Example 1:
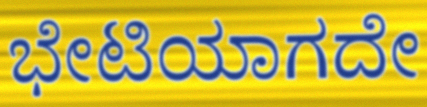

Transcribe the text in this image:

ಭೇಟಿಯಾಗದೇ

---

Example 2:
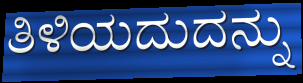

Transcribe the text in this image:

ತಿಳಿಯದುದನ್ನು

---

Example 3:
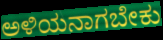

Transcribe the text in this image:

ಅಳಿಯನಾಗಬೇಕು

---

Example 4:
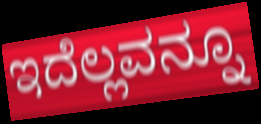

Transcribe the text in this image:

ಇದೆಲ್ಲವನ್ನೂ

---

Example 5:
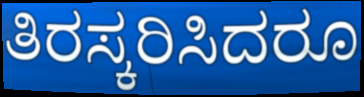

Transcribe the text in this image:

ತಿರಸ್ಕರಿಸಿದರೂ